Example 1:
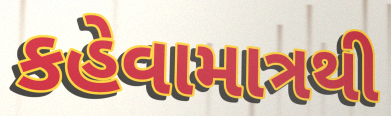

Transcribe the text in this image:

કહેવામાત્રથી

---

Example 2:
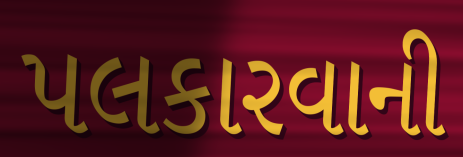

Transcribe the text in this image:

પલકારવાની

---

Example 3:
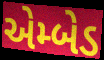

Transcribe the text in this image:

એમ્બેડ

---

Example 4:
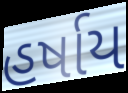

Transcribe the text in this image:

હર્ષાય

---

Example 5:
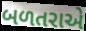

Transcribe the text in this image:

બળતરાએ